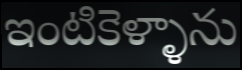
ఇంటికెళ్ళాను